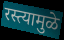
रस्त्यामुळे